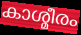
കാശ്മീരം